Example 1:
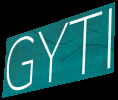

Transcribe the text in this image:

GYTI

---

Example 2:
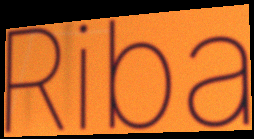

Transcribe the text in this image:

Riba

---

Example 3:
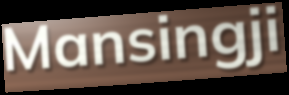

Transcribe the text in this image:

Mansingji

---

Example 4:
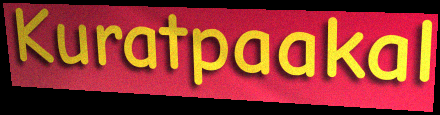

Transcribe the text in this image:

Kuratpaakal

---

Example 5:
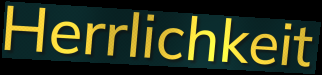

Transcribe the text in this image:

Herrlichkeit